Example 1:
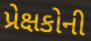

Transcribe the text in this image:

પ્રેક્ષકોની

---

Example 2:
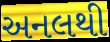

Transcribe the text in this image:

અનલથી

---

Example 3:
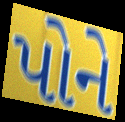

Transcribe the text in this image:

પોને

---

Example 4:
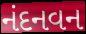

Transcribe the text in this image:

નંદનવન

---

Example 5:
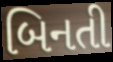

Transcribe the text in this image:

બિનતી